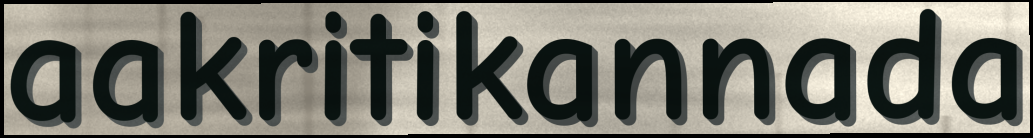
aakritikannada